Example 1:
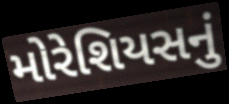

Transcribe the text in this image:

મોરેશિયસનું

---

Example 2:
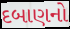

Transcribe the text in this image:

દબાણનો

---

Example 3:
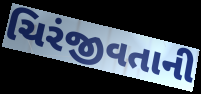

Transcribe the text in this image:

ચિરંજીવતાની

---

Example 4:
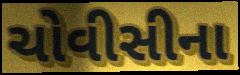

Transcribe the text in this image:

ચોવીસીના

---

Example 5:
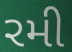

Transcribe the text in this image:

રમી